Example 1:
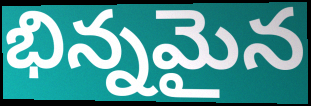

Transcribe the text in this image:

భిన్నమైన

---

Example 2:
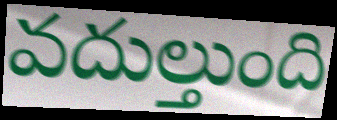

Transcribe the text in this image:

వదుల్తుంది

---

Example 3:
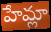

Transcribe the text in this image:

హేమ్లా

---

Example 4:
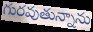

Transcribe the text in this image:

గురవుతున్నాను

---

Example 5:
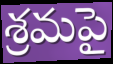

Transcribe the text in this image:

శ్రమపై